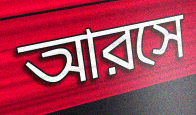
আরসে